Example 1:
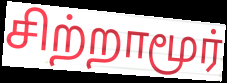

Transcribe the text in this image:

சிற்றாமூர்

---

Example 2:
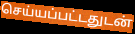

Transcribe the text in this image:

செய்யப்பட்டதுடன்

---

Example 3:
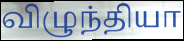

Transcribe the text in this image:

விழுந்தியா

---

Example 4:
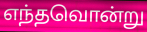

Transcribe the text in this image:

எந்தவொன்று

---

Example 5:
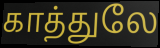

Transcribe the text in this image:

காத்துலே